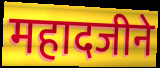
महादजीने